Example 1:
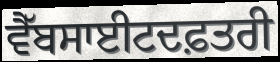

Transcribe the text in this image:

ਵੈੱਬਸਾਈਟਦਫ਼ਤਰੀ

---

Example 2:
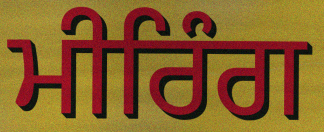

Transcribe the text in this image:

ਮੀਰਿੰਗ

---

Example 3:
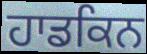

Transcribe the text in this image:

ਹਾਡਕਿਨ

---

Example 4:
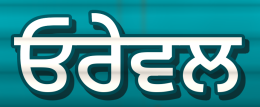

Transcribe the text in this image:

ਓਰੇਵਲ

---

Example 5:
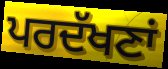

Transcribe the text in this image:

ਪਰਦੱਖਣਾਂ